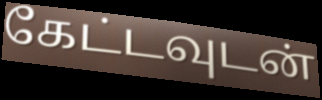
கேட்டவுடன்